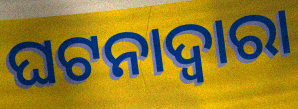
ଘଟନାଦ୍ୱାରା